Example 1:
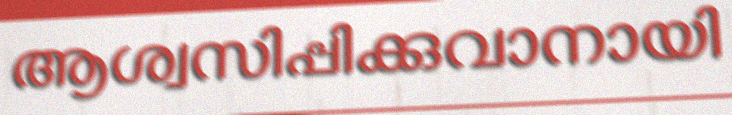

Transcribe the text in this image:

ആശ്വസിപ്പിക്കുവാനായി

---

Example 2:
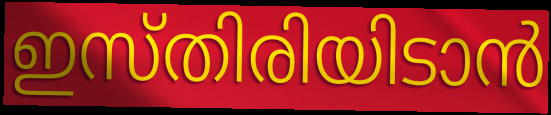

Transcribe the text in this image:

ഇസ്തിരിയിടാൻ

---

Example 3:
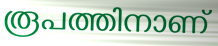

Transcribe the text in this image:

രൂപത്തിനാണ്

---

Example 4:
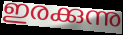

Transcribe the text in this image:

ഇരക്കുന്നു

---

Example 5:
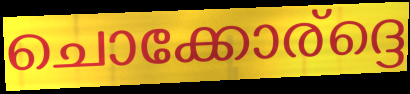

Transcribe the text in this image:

ചൊക്കോര്ദ്ദെ